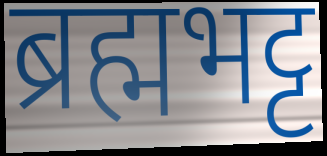
ब्रह्मभट्ट